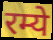
रम्ये